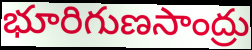
భూరిగుణసాంద్రు